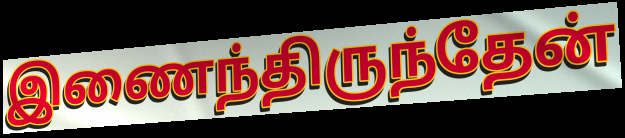
இணைந்திருந்தேன்